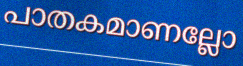
പാതകമാണല്ലോ